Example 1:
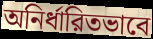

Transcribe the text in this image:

অনির্ধারিতভাবে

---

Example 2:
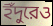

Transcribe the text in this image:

ইঁদুরেও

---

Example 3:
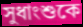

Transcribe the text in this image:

সুধাংশুকে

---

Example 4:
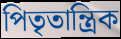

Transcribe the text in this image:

পিতৃতান্ত্রিক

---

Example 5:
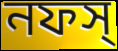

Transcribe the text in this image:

নফস্